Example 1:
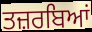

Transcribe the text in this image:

ਤਜ਼ਰਬਿਆਂ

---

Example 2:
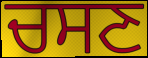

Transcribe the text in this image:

ਚਸਣ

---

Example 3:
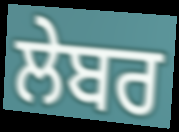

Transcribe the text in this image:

ਲੇਬਰ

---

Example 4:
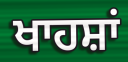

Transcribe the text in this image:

ਖਾਹਸ਼ਾਂ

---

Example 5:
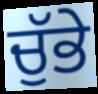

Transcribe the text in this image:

ਚੁੱਭੇ